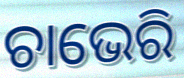
ଚାଭେରି